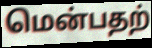
மென்பதற்